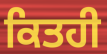
ਕਿਤਹੀ